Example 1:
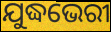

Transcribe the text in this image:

ଯୁଦ୍ଧଭେରୀ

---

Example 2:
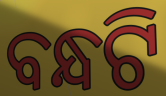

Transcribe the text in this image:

ବନ୍ଧଟି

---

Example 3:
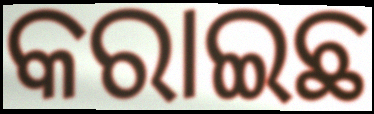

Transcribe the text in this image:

କରାଇଛ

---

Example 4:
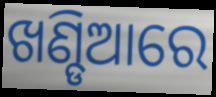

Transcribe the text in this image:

ଖଣ୍ଡିଆରେ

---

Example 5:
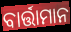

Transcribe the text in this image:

ବାର୍ତ୍ତାମାନ